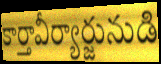
కార్తావీర్యార్జునుడి